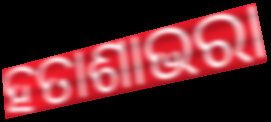
ହତାଶାଭରା